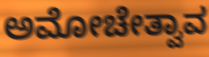
ಅಮೋಚೇತ್ವಾವ